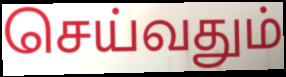
செய்வதும்